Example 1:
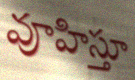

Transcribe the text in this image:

వూహిస్తూ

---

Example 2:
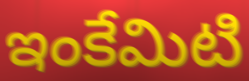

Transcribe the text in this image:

ఇంకేమిటి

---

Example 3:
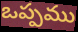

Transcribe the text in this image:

ఒప్పము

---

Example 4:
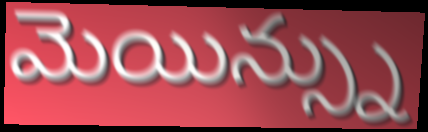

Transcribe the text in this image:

మెయిన్స్ను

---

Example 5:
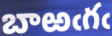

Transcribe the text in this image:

బాఱఁగఁ